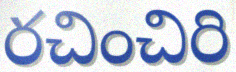
రచించిరి